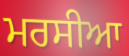
ਮਰਸੀਆ